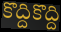
కొద్దికొద్ది